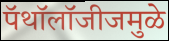
पॅथॉलॉजीजमुळे